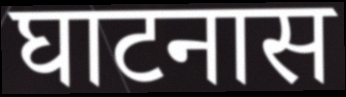
घाटनास